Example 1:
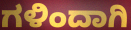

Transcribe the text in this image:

ಗಳಿಂದಾಗಿ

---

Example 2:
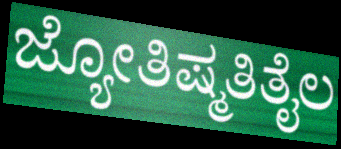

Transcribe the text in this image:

ಜ್ಯೋತಿಷ್ಮತಿತೈಲ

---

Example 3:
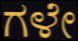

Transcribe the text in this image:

ಗಳೇ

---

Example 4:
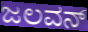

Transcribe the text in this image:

ಜಲವನ್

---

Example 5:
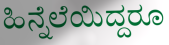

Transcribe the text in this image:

ಹಿನ್ನೆಲೆಯಿದ್ದರೂ